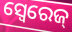
ସ୍ବେରେଜ୍